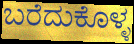
ಬರೆದುಕೊಳ್ಳ